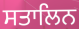
ਸਤਾਲਿਨ